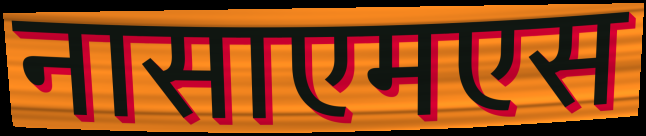
नासाएमएस